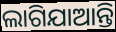
ଲାଗିଯାଆନ୍ତି